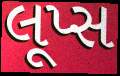
લૂપ્સ